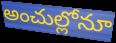
అంచుల్లోనూ